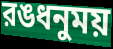
রঙধনুময়